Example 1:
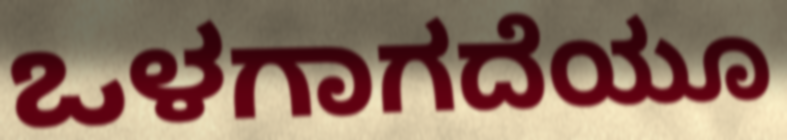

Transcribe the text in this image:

ಒಳಗಾಗದೆಯೂ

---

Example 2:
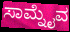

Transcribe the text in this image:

ಸಾಮ್ನೈವ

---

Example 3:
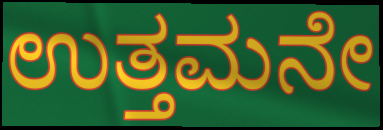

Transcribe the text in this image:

ಉತ್ತಮನೇ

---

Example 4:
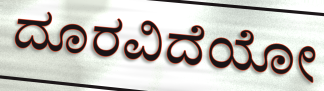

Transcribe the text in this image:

ದೂರವಿದೆಯೋ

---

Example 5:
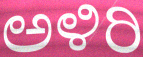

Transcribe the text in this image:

ಅಳಿರಿ